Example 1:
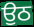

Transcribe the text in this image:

ਉਠ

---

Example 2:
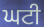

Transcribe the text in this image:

ਘਟੀ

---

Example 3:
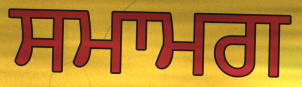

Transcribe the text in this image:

ਸਮਾਮਗ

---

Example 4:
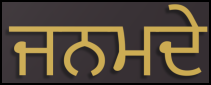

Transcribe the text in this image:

ਜਨਮਦੇ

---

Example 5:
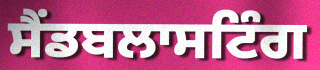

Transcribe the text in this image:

ਸੈਂਡਬਲਾਸਟਿੰਗ